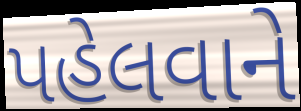
પહેલવાને